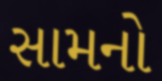
સામનો